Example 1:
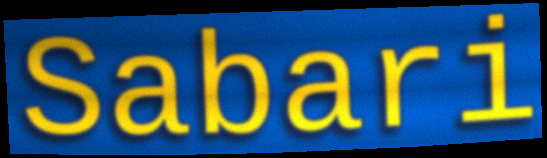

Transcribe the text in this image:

Sabari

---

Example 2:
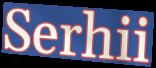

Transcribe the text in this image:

Serhii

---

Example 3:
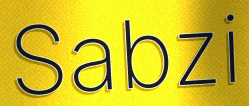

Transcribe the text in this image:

Sabzi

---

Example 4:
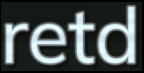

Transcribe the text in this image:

retd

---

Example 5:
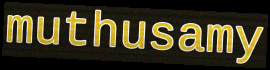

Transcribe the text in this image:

muthusamy